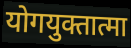
योगयुक्तात्मा